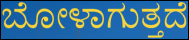
ಬೋಳಾಗುತ್ತದೆ